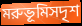
মরুভূমিসদৃশ